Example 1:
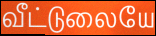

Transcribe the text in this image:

வீட்டுலையே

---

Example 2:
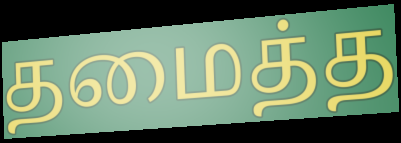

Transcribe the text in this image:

தமைத்த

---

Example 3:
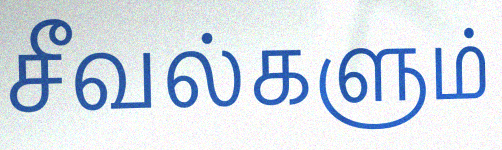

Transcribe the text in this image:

சீவல்களும்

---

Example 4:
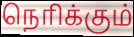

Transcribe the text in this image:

நெரிக்கும்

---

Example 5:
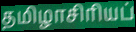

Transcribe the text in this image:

தமிழாசிரியப்